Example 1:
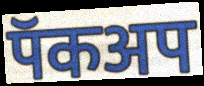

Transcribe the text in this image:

पॅकअप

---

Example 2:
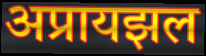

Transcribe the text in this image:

अप्रायझल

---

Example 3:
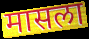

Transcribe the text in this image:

मासला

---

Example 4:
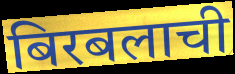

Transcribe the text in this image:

बिरबलाची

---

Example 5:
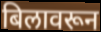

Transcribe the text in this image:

बिलावरून